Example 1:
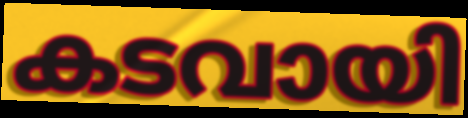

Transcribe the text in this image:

കടവായി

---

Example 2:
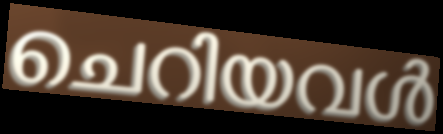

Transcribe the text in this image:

ചെറിയവൾ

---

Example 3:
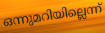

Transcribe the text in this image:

ഒന്നുമറിയില്ലെന്ന്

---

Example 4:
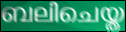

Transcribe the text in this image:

ബലിചെയ്ത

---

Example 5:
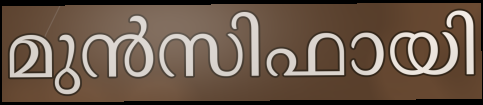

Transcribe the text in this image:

മുൻസിഫായി